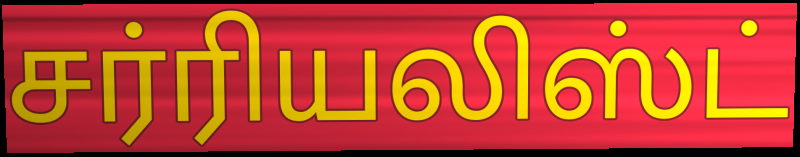
சர்ரியலிஸ்ட்